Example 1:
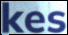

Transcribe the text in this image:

kes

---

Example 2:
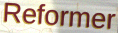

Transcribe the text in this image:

Reformer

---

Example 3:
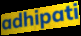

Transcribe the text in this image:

adhipati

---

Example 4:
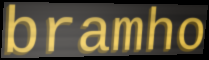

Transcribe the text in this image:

bramho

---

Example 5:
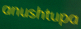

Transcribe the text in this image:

anushtupa